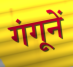
गंगूनें